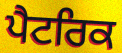
ਪੈਟਰਿਕ